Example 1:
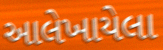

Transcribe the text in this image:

આલેખાયેલા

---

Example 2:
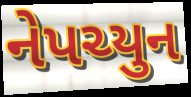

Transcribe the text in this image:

નેપચ્યુન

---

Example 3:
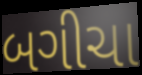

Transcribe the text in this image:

બગીચા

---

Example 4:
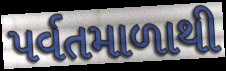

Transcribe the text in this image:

પર્વતમાળાથી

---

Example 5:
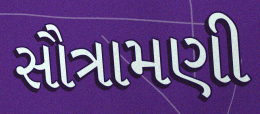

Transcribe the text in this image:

સૌત્રામણી